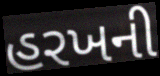
હરખની